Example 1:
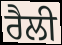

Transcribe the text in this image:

ਰੈਲੀ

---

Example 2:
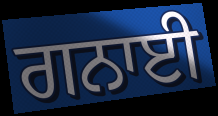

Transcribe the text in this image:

ਗਨਾਈ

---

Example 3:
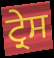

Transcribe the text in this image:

ਟ੍ਰੇਸ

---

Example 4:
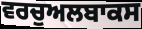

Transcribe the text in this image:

ਵਰਚੁਅਲਬਾਕਸ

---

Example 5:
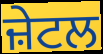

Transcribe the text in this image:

ਜ਼ੇਟਲ